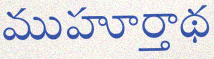
ముహూర్తాథ